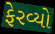
ફેરવ્યો